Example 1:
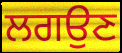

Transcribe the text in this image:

ਲਗਉਣ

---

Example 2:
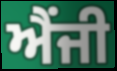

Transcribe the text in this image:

ਐਂਜੀ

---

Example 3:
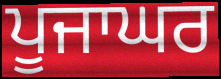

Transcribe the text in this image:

ਪੂਜਾਘਰ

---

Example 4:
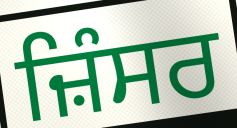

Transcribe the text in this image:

ਜ਼ਿੰਸਰ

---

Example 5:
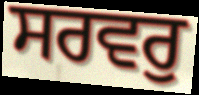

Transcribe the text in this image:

ਸਰਵਰੁ